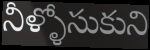
నీళ్ళోసుకుని